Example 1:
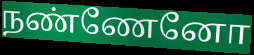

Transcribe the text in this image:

நண்ணேனோ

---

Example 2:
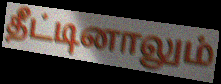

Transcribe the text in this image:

தீட்டினாலும்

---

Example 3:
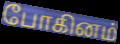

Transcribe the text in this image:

போகினம்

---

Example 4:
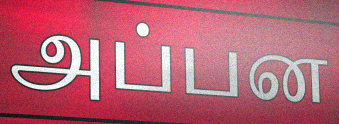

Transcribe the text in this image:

அப்பன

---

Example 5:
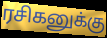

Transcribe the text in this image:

ரசிகனுக்கு